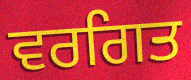
ਵਰਗਿਤ